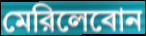
মেরিলেবোন